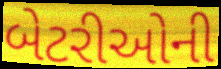
બેટરીઓની